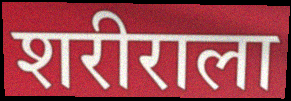
शरीराला